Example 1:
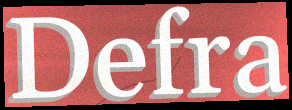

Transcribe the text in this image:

Defra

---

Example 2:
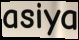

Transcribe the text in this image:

asiya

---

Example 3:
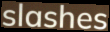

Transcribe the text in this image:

slashes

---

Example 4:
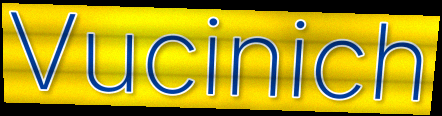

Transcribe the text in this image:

Vucinich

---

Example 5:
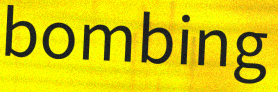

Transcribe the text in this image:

bombing